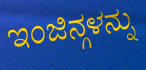
ಇಂಜಿನ್ಗಳನ್ನು